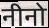
नीनो